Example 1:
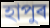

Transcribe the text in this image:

হাপুৰ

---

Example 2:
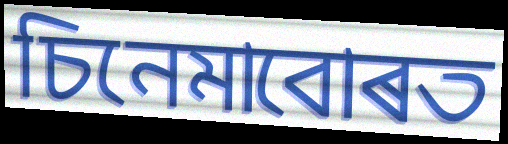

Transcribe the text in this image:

চিনেমাবোৰত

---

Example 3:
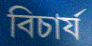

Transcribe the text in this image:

বিচাৰ্য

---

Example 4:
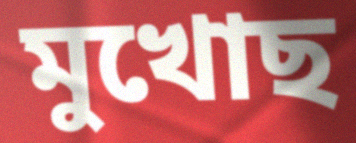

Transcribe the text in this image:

মুখোছ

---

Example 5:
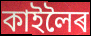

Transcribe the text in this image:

কাইলৈৰ